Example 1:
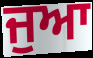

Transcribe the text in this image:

ਜੁਆ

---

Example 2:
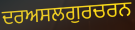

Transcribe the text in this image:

ਦਰਅਸਲਗੁਰਚਰਨ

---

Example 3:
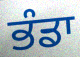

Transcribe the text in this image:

ਭੰਡਾ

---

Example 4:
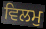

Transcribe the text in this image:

ਵਿਲਮੁ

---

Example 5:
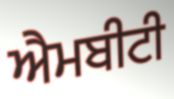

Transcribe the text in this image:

ਐਮਬੀਟੀ